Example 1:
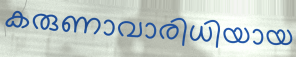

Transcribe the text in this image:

കരുണാവാരിധിയായ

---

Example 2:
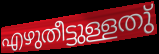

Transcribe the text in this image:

എഴുതീട്ടുള്ളതു്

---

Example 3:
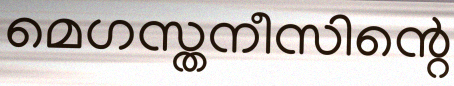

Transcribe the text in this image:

മെഗസ്തനീസിന്റെ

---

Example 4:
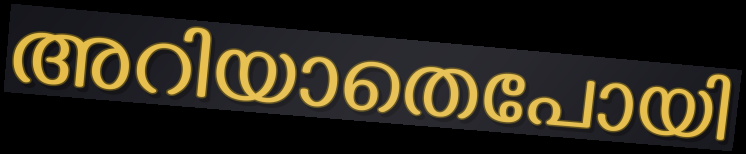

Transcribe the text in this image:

അറിയാതെപോയി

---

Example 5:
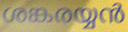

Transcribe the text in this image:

ശങ്കരയ്യൻ